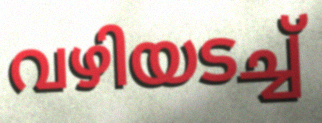
വഴിയടച്ച്